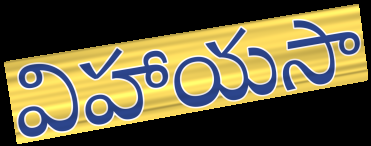
విహాయసా